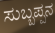
ಸುಬ್ಬಪ್ಪನ